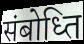
संबोध्ति